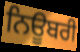
ਨਿਊਬਰੀ